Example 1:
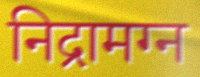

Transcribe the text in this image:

निद्रामग्न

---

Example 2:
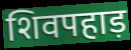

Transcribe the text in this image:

शिवपहाड़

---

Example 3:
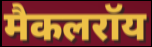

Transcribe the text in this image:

मैकलरॉय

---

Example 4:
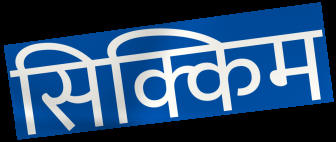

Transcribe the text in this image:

सिक्किम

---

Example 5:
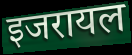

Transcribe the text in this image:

इजरायल